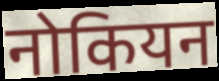
नोकियन